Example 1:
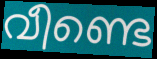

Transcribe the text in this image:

വീണ്ടെ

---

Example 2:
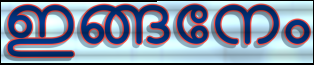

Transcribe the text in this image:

ഇങ്ങനേം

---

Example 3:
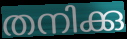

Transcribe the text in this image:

തനിക്കു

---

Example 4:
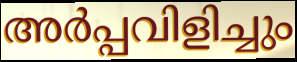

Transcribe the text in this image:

അർപ്പവിളിച്ചും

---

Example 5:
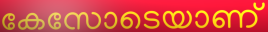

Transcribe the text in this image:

കേസോടെയാണ്